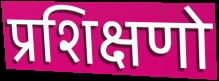
प्रशिक्षणो